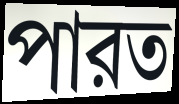
পারত